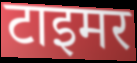
टाइमर